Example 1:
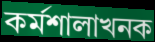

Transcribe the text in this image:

কৰ্মশালাখনক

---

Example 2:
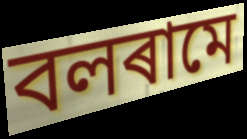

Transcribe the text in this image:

বলৰামে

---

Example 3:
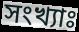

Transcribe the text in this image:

সংখ্যাঃ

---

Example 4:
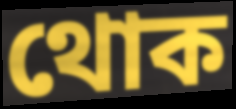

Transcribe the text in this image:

থোক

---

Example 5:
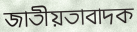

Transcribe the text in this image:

জাতীয়তাবাদক